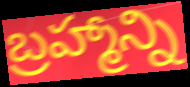
బ్రహ్మాన్ని